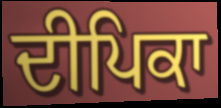
ਦੀਪਿਕਾ